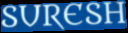
SURESH